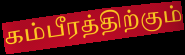
கம்பீரத்திற்கும்